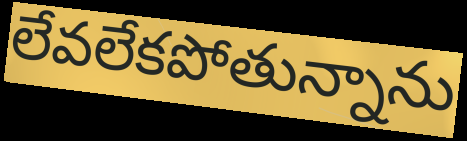
లేవలేకపోతున్నాను